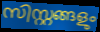
സിസ്റ്റങ്ങളും